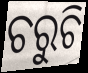
ଚରୁଚି